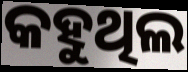
କହୁଥିଲ